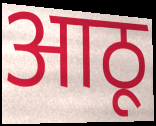
आठू